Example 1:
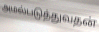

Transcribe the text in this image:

அமல்படுத்துவதன்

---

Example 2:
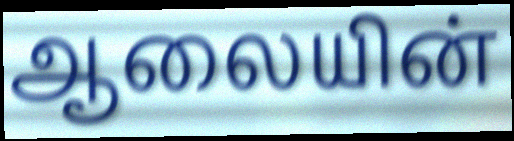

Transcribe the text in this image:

ஆலையின்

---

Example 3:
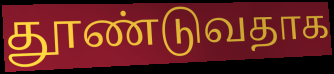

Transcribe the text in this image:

தூண்டுவதாக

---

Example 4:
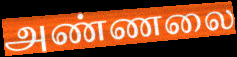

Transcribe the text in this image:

அண்ணலை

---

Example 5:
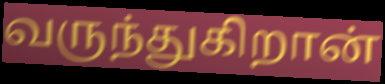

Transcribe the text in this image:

வருந்துகிறான்